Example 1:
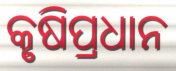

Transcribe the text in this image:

କୃଷିପ୍ରଧାନ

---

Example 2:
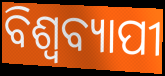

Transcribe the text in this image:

ବିଶ୍ଵବ୍ୟାପୀ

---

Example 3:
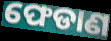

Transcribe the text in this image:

ଫେଡାଣ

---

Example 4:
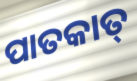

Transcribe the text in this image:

ପାତକାତ୍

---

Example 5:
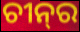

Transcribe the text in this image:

ଚୀନ୍‌ର